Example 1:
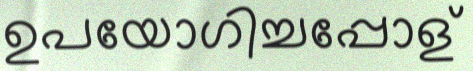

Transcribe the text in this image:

ഉപയോഗിച്ചപ്പോള്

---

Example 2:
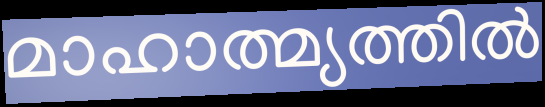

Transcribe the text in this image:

മാഹാത്മ്യത്തിൽ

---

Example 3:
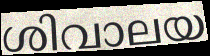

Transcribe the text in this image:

ശിവാലയ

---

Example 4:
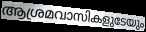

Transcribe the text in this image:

ആശ്രമവാസികളുടേയും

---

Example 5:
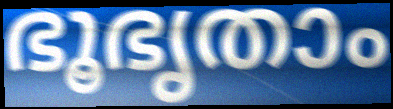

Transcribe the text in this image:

ഭൂഭൃതാം